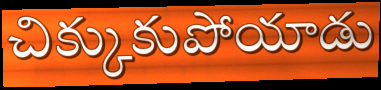
చిక్కుకుపోయాడు